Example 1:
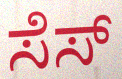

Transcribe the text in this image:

ಸೆಸ್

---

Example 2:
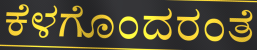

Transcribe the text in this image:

ಕೆಳಗೊಂದರಂತೆ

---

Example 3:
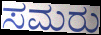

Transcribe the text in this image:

ಸಮರು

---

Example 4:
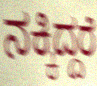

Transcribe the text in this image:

ನಕ್ಕಿದ್ದರೆ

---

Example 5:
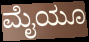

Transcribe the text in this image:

ಮೈಯೂ